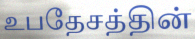
உபதேசத்தின்